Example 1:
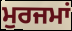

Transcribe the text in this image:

ਮੁਰਜਮਾਂ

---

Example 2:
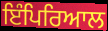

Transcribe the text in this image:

ਇੰਪਿਰਿਆਲ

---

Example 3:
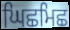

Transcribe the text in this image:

ਘਿਛਮਿਛ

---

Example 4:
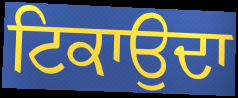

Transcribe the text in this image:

ਟਿਕਾਉਦਾ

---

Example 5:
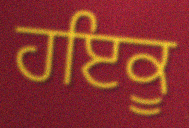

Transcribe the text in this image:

ਹਇਕੂ